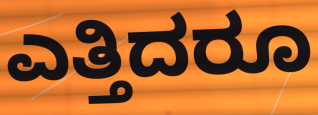
ಎತ್ತಿದರೂ